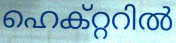
ഹെക്റ്ററിൽ